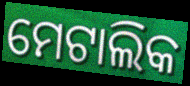
ମେଟାଲିକ